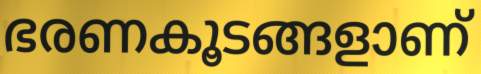
ഭരണകൂടങ്ങളാണ്